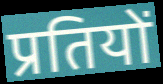
प्रतियों